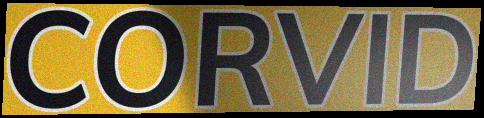
CORVID